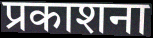
प्रकाशना